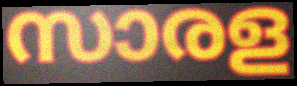
സാരള